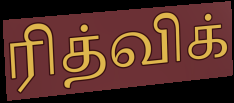
ரித்விக்